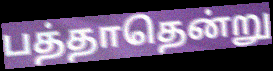
பத்தாதென்று